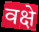
वक्षे